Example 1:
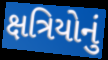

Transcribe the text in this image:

ક્ષત્રિયોનું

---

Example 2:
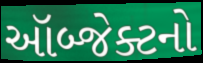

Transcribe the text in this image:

ઑબ્જેક્ટનો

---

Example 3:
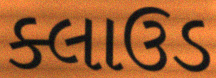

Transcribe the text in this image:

ક્લાઉડ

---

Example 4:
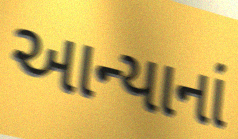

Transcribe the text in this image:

આન્યાનાં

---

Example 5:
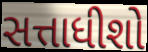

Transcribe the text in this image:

સત્તાધીશો